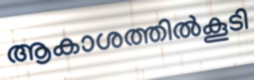
ആകാശത്തിൽകൂടി